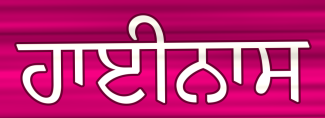
ਹਾਈਨਾਸ